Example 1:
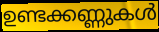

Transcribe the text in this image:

ഉണ്ടക്കണ്ണുകൾ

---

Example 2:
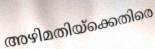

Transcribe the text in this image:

അഴിമതിയ്ക്കെതിരെ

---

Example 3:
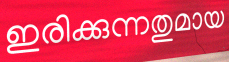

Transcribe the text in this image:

ഇരിക്കുന്നതുമായ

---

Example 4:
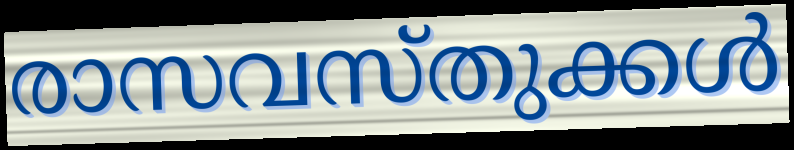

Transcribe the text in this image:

രാസവസ്തുക്കൾ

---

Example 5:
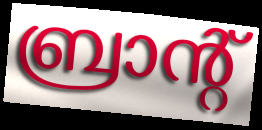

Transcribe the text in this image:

ബ്രാന്റ്